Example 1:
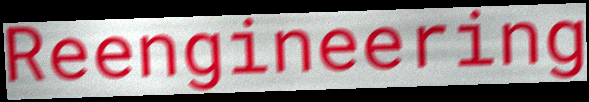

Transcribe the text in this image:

Reengineering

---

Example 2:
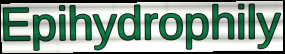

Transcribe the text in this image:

Epihydrophily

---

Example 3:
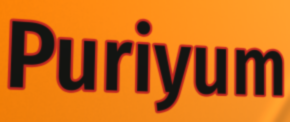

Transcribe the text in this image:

Puriyum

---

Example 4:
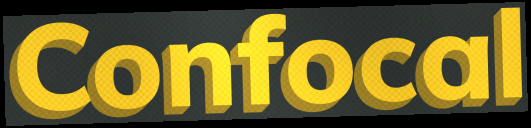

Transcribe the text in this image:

Confocal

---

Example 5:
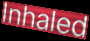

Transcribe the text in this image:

Inhaled